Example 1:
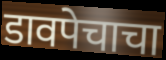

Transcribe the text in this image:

डावपेचाचा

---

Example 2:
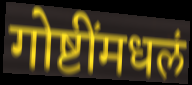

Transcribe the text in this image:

गोष्टींमधलं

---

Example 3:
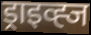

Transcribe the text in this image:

ड्राइव्ह्ज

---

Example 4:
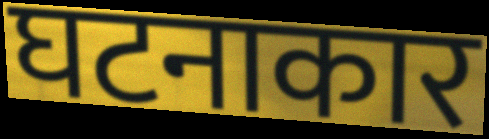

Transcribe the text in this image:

घटनाकार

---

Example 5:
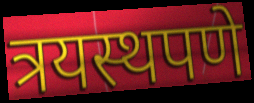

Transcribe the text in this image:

त्रयस्थपणे